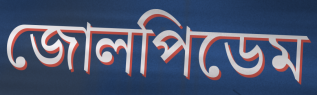
জোলপিডেম